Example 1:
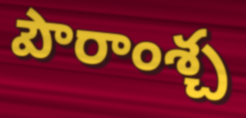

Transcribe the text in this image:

పౌరాంశ్చ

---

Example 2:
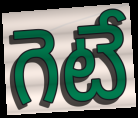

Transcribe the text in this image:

గెటే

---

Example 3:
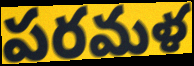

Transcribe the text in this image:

పరమళ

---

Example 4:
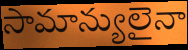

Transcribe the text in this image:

సామాన్యులైనా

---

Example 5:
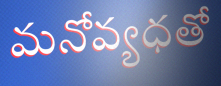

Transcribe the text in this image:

మనోవ్యధతో